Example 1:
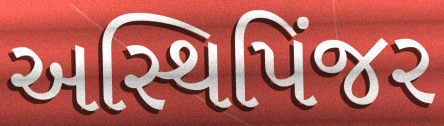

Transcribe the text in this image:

અસ્થિપિંજર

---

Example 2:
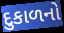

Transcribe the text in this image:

દુકાળનો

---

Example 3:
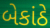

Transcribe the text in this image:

બેકાંઠે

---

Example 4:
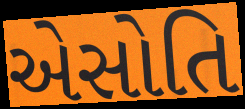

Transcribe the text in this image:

એસોતિ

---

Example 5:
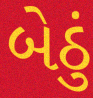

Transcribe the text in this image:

બેઠું